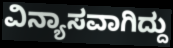
ವಿನ್ಯಾಸವಾಗಿದ್ದು